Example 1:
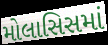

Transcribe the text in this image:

મોલાસિસમાં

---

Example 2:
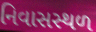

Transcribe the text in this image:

નિવાસસ્થળ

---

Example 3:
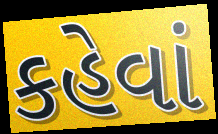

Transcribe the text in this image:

કહેવાં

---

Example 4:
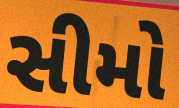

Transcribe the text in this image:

સીમો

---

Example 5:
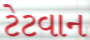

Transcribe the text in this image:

ટેટવાન